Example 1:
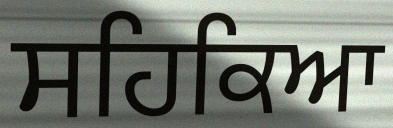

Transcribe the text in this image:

ਸਹਿਕਿਆ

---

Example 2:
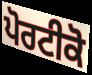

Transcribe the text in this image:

ਪੋਰਟੀਕੋ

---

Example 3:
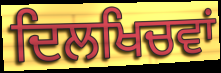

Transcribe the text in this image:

ਦਿਲਖਿਚਵਾਂ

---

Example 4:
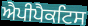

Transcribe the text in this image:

ਐਪੀਪੈਕਟਿਸ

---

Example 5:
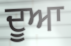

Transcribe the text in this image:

ਦੂਆ